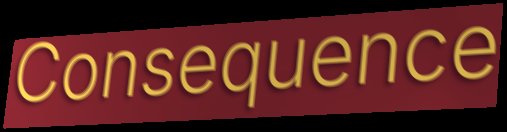
Consequence